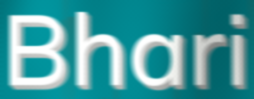
Bhari